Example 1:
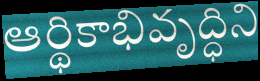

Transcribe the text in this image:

ఆర్థికాభివృద్ధిని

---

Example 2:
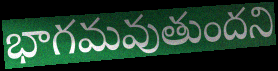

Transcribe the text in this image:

భాగమవుతుందని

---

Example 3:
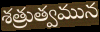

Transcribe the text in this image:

శత్రుత్వమున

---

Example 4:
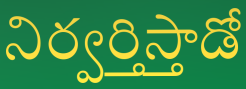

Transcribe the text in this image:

నిర్వర్తిస్తాడో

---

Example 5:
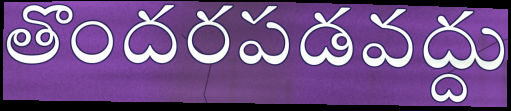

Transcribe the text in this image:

తొందరపడవద్దు